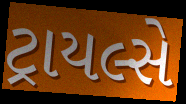
ટ્રાયલ્સે